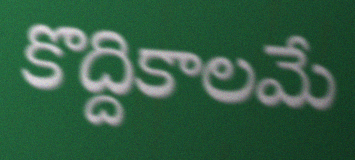
కొద్దికాలమే